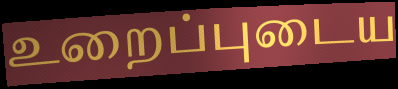
உறைப்புடைய